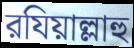
রযিয়াল্লাহু